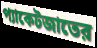
প্যাকেটজাতের